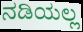
ನಡಿಯಲ್ಲ